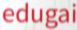
edugai